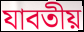
যাবতীয়